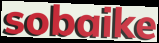
sobaike